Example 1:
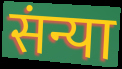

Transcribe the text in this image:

संन्या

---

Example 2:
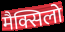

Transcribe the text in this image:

मैक्सिलो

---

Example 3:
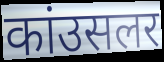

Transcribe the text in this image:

कांउसलर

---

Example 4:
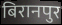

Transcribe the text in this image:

बिरानपुर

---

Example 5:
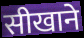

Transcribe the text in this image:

सीखाने